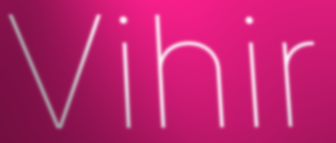
Vihir